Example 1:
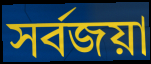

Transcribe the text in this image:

সৰ্বজয়া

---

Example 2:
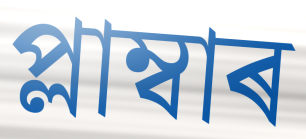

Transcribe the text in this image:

প্লাম্বাৰ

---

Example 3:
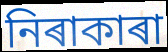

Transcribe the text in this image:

নিৰাকাৰা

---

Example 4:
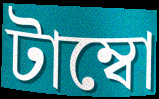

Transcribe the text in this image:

টাম্বো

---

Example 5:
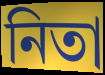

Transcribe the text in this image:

নিতা